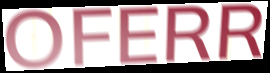
OFERR